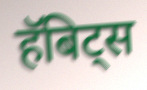
हॅबिट्स